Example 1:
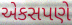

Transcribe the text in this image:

એકસપણે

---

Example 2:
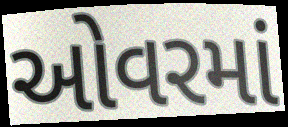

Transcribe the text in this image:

ઓવરમાં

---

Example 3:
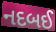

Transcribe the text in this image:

નદબઈ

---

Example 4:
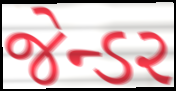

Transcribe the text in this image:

જેન્ડર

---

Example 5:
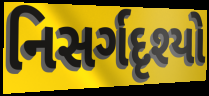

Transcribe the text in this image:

નિસર્ગદૃશ્યો